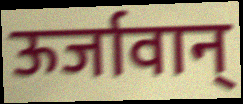
ऊर्जावान्